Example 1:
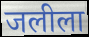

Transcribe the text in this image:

जलीला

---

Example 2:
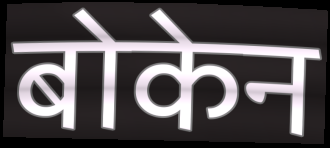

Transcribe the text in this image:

बोकेन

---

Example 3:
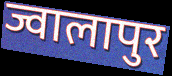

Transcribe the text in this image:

ज्वालापुर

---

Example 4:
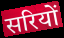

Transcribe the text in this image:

सरियों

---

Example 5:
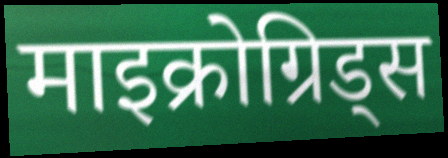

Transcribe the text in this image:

माइक्रोग्रिड्स